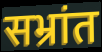
सभ्रांत